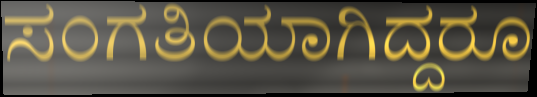
ಸಂಗತಿಯಾಗಿದ್ದರೂ